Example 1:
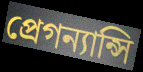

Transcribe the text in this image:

প্রেগন্যান্সি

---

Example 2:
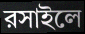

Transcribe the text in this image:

রসাইলে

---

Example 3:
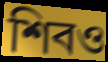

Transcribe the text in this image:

শিবও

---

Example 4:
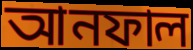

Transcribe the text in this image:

আনফাল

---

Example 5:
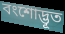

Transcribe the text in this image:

বংশোদ্ভূত